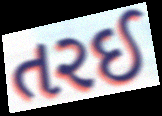
તરઈ